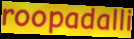
roopadalli